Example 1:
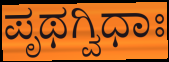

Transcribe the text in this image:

ಪೃಥಗ್ವಿಧಾಃ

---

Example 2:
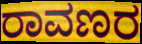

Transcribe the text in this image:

ರಾವಣರ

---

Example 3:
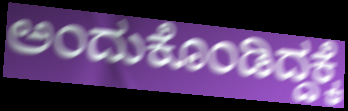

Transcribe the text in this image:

ಅಂದುಕೊಂಡಿದ್ದಕ್ಕೆ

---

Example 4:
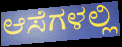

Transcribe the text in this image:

ಆಸೆಗಳಲ್ಲಿ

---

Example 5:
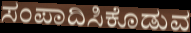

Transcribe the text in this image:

ಸಂಪಾದಿಸಿಕೊಡುವ